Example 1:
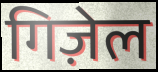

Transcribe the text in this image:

गिज़ेल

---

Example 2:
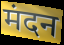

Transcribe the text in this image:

मंदन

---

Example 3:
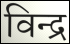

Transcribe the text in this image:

विन्द्र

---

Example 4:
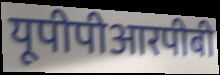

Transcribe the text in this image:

यूपीपीआरपीबी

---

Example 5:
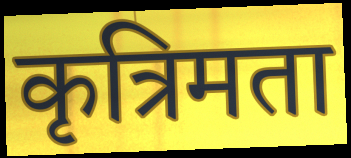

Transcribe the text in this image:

कृत्रिमता